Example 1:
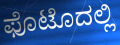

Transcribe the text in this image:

ಫೊಟೊದಲ್ಲಿ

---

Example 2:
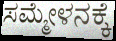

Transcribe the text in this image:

ಸಮ್ಮೇಳನಕ್ಕೆ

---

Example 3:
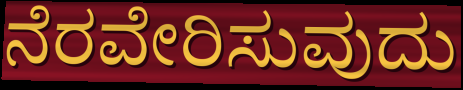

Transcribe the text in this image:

ನೆರವೇರಿಸುವುದು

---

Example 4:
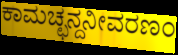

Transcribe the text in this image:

ಕಾಮಚ್ಛನ್ದನೀವರಣಂ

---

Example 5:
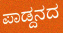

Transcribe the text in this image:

ಪಾಡ್ದನದ